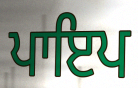
ਪਾਇਪ